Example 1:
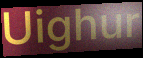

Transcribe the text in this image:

Uighur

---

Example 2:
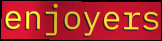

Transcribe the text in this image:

enjoyers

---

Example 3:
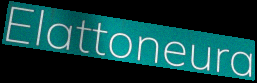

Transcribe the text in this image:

Elattoneura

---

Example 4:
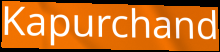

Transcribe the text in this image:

Kapurchand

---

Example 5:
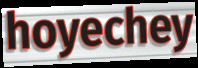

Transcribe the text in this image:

hoyechey